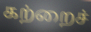
கற்றைச்